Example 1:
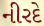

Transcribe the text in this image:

નીરદે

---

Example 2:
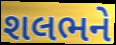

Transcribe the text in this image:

શલભને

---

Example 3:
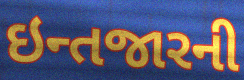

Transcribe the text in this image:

ઇન્તજારની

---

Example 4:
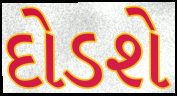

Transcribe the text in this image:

દોડશે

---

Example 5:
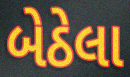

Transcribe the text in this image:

બેઠેલા